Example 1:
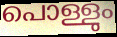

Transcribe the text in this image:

പൊള്ളും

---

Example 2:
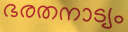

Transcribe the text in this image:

ഭരതനാട്യം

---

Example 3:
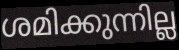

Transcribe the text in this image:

ശമിക്കുന്നില്ല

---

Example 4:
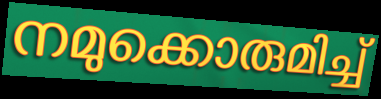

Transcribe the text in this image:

നമുക്കൊരുമിച്ച്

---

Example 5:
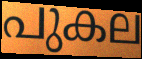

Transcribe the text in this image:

പുകല